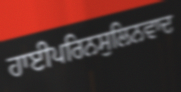
ਹਾਈਪਰਿਨਸੁਲਿਨਵਾਦ